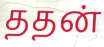
ததன்